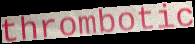
thrombotic